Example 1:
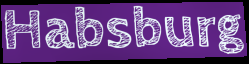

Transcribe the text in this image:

Habsburg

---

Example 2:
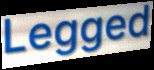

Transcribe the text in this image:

Legged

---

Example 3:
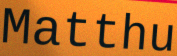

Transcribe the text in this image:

Matthu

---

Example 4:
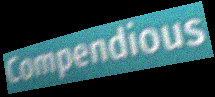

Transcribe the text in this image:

Compendious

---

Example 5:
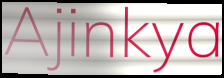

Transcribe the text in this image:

Ajinkya